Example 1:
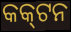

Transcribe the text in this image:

କକ୍‌ଟନ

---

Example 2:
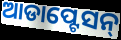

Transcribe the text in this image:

ଆଡାପ୍ଟେସନ୍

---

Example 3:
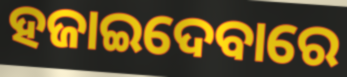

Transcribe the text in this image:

ହଜାଇଦେବାରେ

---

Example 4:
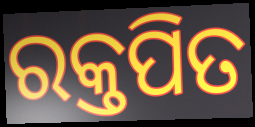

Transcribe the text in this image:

ରକ୍ତପିତ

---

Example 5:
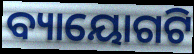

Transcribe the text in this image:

ବ୍ୟାୟୋଗଟି